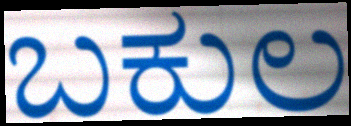
ಬಕುಲ